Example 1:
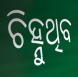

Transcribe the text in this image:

ଚିହ୍ନୁଥିବ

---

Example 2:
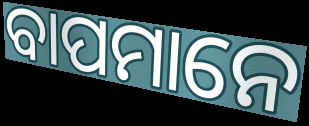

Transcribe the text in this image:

ବାପମାନେ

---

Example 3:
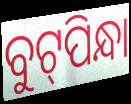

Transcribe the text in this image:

ବୁଟ୍‌ପିନ୍ଧା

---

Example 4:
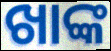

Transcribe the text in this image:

ଖାଙ୍କ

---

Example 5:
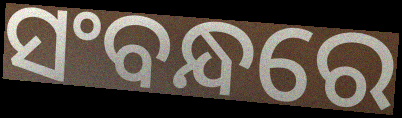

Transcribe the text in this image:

ସଂବନ୍ଧରେ